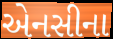
એનસીના